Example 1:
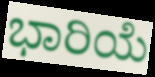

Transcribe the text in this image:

ಭಾರಿಯೆ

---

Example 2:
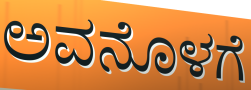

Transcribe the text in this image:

ಅವನೊಳಗೆ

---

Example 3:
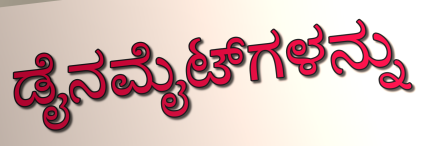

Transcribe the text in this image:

ಡೈನಮೈಟ್‌ಗಳನ್ನು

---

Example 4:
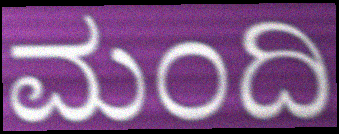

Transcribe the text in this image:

ಮಂದಿ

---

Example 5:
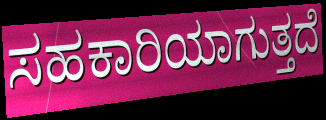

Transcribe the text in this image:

ಸಹಕಾರಿಯಾಗುತ್ತದೆ